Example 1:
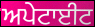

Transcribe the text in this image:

ਅਪੇਟਾਈਟ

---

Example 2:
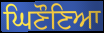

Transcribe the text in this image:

ਘਿਣੌਣਿਆ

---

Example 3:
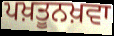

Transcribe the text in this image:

ਪਖ਼ਤੂਨਖ਼ਵਾ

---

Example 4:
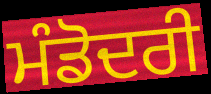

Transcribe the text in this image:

ਮੰਡੋਦਰੀ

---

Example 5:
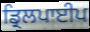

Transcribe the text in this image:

ਡ੍ਰਿਲਪਾਈਪ